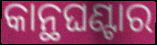
କାନ୍ଥଘଣ୍ଟାର